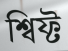
শ্বিফ্ট